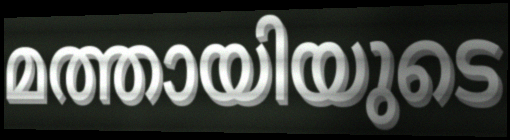
മത്തായിയുടെ